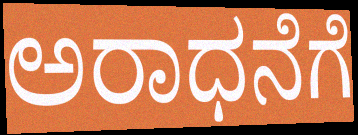
ಅರಾಧನೆಗೆ